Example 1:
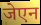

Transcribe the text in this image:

जेएन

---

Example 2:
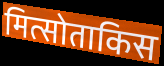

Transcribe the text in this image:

मित्सोताकिस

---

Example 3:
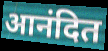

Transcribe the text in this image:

आनंदित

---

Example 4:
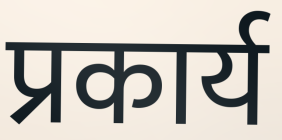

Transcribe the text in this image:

प्रकार्य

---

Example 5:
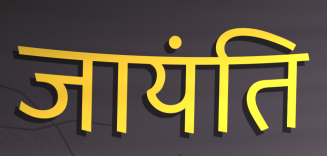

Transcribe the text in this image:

जायंति